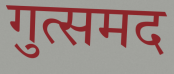
गुत्समद